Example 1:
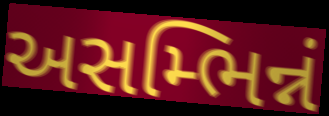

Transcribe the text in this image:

અસમ્ભિન્નં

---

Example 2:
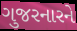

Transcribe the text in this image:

ગુજરનારને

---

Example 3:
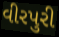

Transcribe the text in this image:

વીરપુરી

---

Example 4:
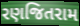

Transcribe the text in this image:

રણજિતરામ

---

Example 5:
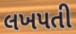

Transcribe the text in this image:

લખપતી